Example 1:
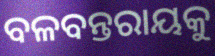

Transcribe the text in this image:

ବଳବନ୍ତରାୟକୁ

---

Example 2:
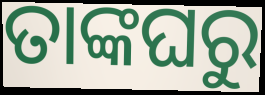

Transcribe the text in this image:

ତାଙ୍କଘରୁ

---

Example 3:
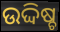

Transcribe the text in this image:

ଉଦ୍ଦିଷ୍ଚ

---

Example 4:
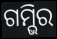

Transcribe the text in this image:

ଗମ୍ଭିର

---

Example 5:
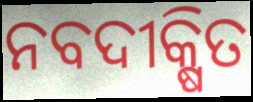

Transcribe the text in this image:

ନବଦୀକ୍ଷିତ